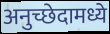
अनुच्छेदामध्ये